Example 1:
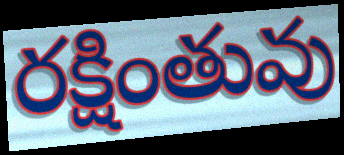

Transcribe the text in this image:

రక్షింతువు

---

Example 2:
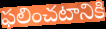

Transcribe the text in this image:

ఫలించటానికి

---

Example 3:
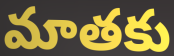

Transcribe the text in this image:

మాతకు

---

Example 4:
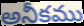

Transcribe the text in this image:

అనీకము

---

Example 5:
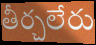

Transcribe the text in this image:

తీర్చలేరు